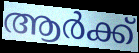
ആർക്ക്